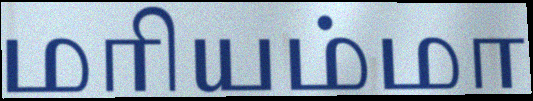
மரியம்மா